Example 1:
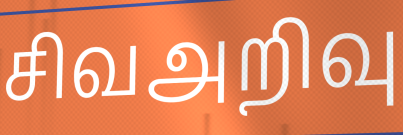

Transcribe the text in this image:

சிவஅறிவு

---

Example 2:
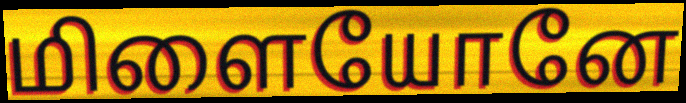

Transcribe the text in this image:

மிளையோனே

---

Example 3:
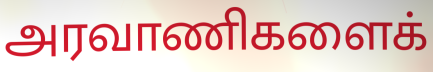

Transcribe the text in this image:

அரவாணிகளைக்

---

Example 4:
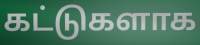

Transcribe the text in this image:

கட்டுகளாக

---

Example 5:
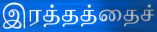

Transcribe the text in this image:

இரத்தத்தைச்